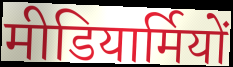
मीडियार्मियों